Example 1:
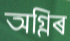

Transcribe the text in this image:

অগ্নিৰ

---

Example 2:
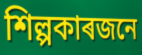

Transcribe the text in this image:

শিল্পকাৰজনে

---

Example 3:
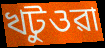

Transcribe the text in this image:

খটুওৱা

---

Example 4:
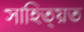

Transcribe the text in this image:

সাহিত্য়ত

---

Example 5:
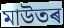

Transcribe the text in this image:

মাউতৰ